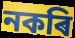
নকৰি